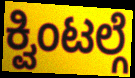
ಕ್ವಿಂಟಲ್ಗೆ